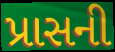
પ્રાસની